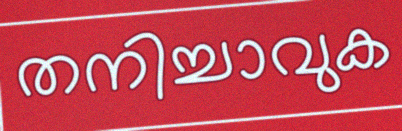
തനിച്ചാവുക